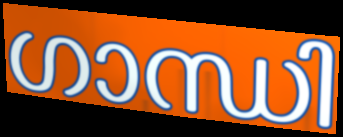
ഗാന്ധി